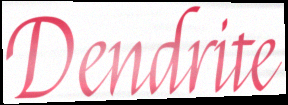
Dendrite